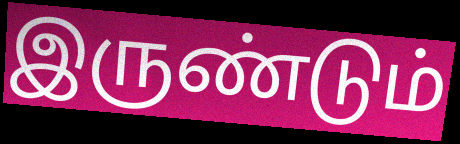
இருண்டும்